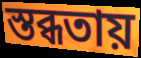
স্তব্ধতায়